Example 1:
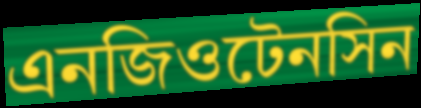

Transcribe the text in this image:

এনজিওটেনসিন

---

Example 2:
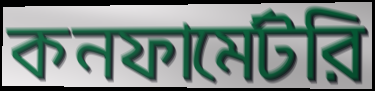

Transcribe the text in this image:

কনফার্মেটরি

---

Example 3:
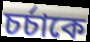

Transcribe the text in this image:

চর্চাকে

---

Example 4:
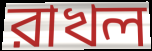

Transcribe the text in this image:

রাখল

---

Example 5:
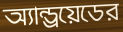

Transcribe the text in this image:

অ্যান্ড্রয়েডের